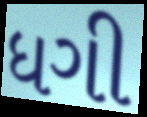
ધગી